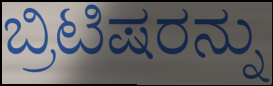
ಬ್ರಿಟಿಷರನ್ನು